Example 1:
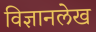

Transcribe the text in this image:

विज्ञानलेख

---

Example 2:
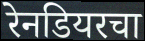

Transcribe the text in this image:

रेनडियरचा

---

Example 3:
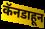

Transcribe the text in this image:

कॅनडाहून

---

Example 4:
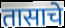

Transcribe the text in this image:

तासाचे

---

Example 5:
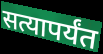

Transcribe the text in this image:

सत्यापर्यंत